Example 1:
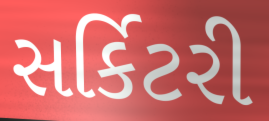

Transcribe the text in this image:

સર્કિટરી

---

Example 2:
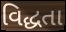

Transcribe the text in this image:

વિદ્ધતા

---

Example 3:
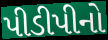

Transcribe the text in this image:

પીડીપીનો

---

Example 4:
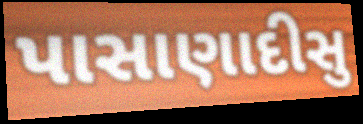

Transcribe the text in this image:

પાસાણાદીસુ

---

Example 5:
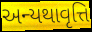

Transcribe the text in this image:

અન્યથાવૃત્તિ